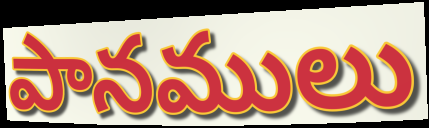
పానములు